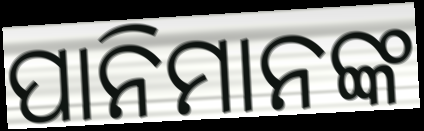
ପାନିମାନଙ୍କ